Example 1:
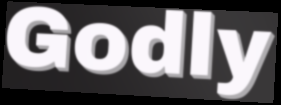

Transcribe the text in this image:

Godly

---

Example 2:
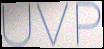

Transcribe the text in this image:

UVP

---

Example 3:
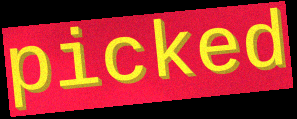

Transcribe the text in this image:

picked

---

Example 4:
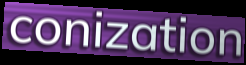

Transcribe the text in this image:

conization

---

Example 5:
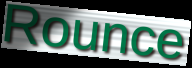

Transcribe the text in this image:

Rounce